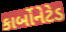
કાર્બોનેટેડ